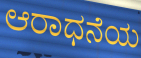
ಆರಾಧನೆಯ